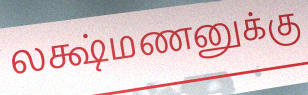
லக்ஷ்மணனுக்கு